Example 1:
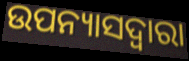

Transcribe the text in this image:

ଉପନ୍ୟାସଦ୍ୱାରା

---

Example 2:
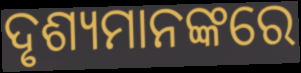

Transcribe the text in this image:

ଦୃଶ୍ୟମାନଙ୍କରେ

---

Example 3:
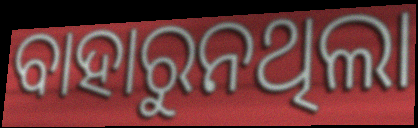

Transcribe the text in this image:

ବାହାରୁନଥିଲା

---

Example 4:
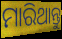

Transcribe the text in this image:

ମାରିଥାନ୍ତୁ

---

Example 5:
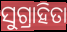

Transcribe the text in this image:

ସୁଗ୍ରାହିତା